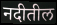
नदीतील